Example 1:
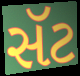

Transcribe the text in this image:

સૅટ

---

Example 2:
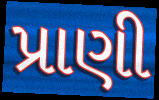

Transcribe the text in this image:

પ્રાણી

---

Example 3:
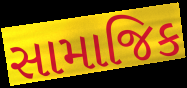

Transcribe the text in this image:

સામાજિક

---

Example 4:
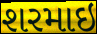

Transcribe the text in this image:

શરમાઇ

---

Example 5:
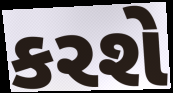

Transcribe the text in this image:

કરશે